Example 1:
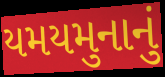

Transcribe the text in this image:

યમયમુનાનું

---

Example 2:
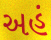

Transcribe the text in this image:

અહં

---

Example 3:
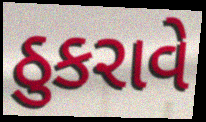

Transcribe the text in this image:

ઠુકરાવે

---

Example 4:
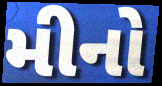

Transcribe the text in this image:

મીનો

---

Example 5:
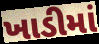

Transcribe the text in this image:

ખાડીમાં